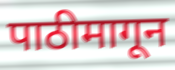
पाठीमागून